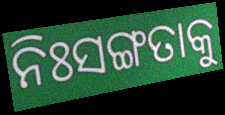
ନିଃସଙ୍ଗତାକୁ